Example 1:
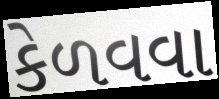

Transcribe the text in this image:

કેળવવા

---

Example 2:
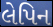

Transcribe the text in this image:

લેપિન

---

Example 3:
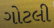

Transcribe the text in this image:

ગોટલી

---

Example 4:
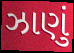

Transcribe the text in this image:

ઝાણું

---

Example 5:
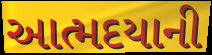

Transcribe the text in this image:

આત્મદયાની